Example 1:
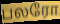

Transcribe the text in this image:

பலரோ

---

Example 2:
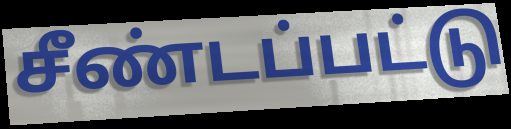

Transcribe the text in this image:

சீண்டப்பட்டு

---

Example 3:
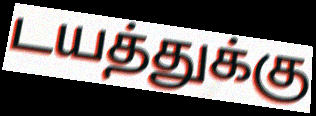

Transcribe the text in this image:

டயத்துக்கு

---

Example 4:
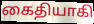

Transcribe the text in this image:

கைதியாகி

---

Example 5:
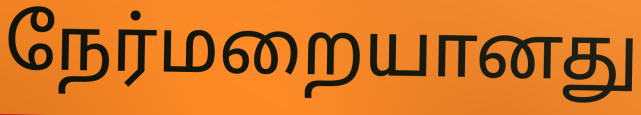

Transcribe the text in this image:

நேர்மறையானது